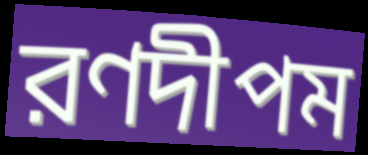
রণদীপম